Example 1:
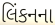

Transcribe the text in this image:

લિંકનના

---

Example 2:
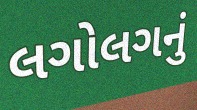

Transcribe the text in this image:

લગોલગનું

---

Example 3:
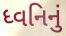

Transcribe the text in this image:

ધ્વનિનું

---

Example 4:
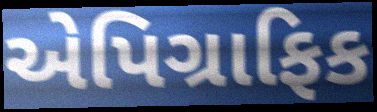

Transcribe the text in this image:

એપિગ્રાફિક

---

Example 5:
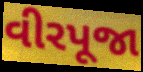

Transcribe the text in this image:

વીરપૂજા